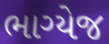
ભાગ્યેજ